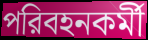
পরিবহনকর্মী